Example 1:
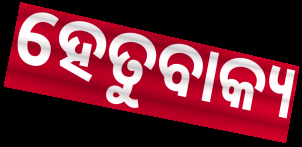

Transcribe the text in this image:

ହେତୁବାକ୍ୟ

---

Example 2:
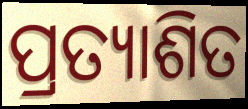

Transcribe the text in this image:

ପ୍ରତ୍ୟାଶିତ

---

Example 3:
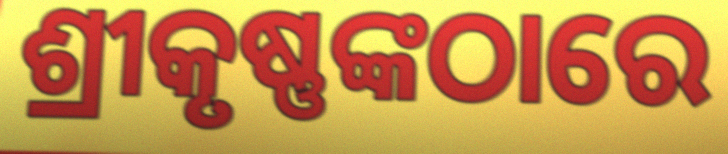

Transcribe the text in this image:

ଶ୍ରୀକୃଷ୍ଣଙ୍କଠାରେ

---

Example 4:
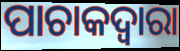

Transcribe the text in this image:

ପାଚାକଦ୍ଵାରା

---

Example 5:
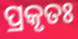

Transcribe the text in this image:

ପ୍ରକୃତଃ